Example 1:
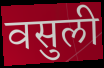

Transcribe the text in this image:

वसुली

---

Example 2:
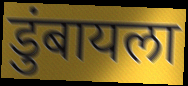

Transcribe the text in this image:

डुंबायला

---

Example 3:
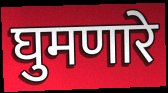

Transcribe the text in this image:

घुमणारे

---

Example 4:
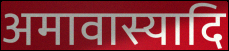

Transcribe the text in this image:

अमावास्यादि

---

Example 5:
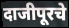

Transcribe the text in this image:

दाजीपूरचे